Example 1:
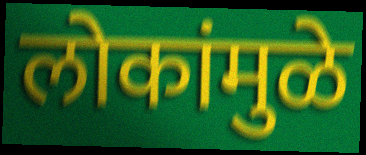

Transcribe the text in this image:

लोकांमुळे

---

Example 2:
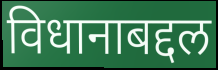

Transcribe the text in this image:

विधानाबद्दल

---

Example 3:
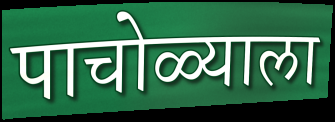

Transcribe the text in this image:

पाचोळ्याला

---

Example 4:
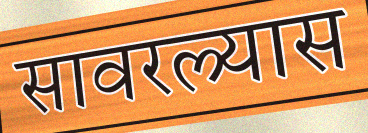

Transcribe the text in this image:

सावरल्यास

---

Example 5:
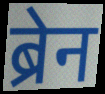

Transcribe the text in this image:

ब्रेन